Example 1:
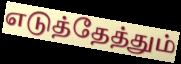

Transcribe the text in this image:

எடுத்தேத்தும்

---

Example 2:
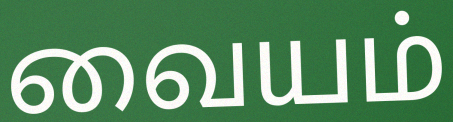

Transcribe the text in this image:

வையம்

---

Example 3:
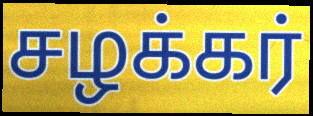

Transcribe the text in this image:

சழக்கர்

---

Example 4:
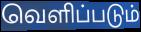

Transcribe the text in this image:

வெளிப்படும்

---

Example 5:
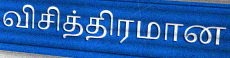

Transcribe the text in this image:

விசித்திரமான